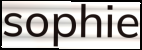
sophie